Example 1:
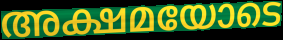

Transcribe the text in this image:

അക്ഷമയോടെ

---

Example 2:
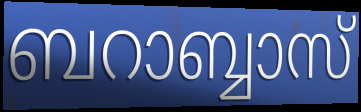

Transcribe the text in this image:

ബറാബ്ബാസ്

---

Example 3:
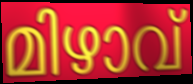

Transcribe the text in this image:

മിഴാവ്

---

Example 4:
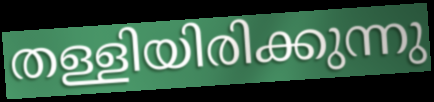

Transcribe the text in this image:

തള്ളിയിരിക്കുന്നു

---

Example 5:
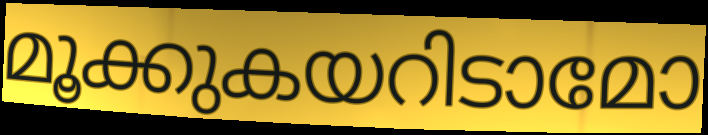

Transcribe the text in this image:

മൂക്കുകയറിടാമോ